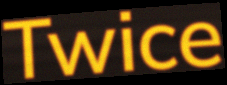
Twice